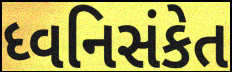
ધ્વનિસંકેત